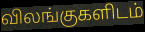
விலங்குகளிடம்